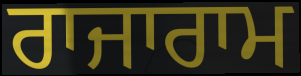
ਰਾਜਾਰਾਮ